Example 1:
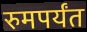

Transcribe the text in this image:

रुमपर्यंत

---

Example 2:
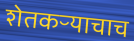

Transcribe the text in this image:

शेतकऱ्याचाच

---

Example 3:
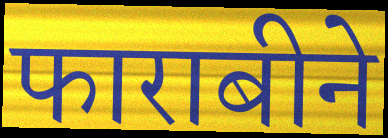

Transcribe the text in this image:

फाराबीने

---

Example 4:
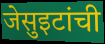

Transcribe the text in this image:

जेसुइटांची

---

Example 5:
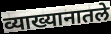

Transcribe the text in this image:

व्याख्यानातले